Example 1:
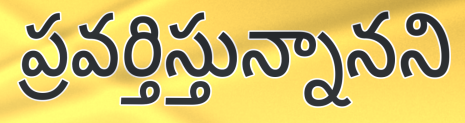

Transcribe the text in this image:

ప్రవర్తిస్తున్నానని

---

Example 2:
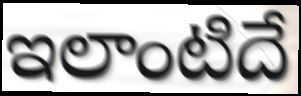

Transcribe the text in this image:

ఇలాంటిదే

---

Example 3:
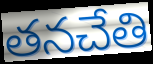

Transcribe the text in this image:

తనచేతి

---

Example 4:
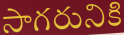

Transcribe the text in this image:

సాగరునికి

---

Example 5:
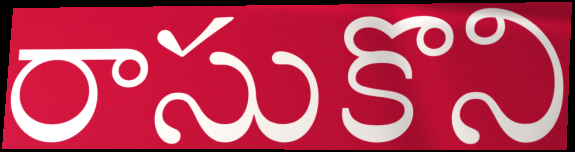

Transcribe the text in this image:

రాసుకొని